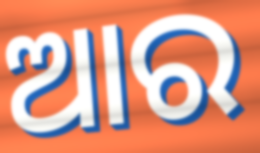
ଆର